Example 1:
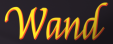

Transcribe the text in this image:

Wand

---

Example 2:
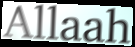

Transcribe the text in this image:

Allaah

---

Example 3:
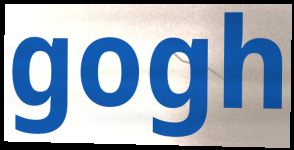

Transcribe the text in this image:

gogh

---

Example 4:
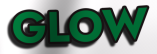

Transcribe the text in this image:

GLOW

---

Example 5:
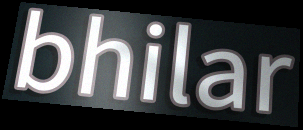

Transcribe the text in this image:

bhilar